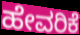
ಹೇವರಿಕೆ